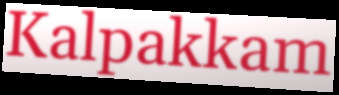
Kalpakkam